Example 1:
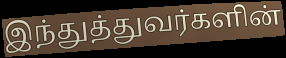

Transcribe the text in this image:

இந்துத்துவர்களின்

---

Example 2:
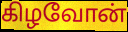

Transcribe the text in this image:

கிழவோன்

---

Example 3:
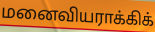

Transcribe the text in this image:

மனைவியராக்கிக்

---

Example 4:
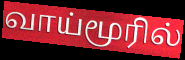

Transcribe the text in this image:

வாய்மூரில்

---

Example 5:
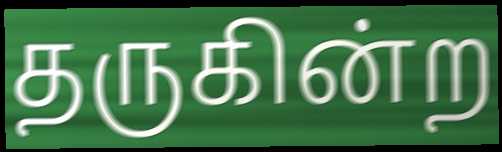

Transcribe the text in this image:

தருகின்ற